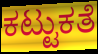
ಕಟ್ಟುಕತೆ